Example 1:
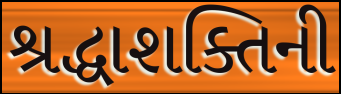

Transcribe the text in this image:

શ્રદ્ધાશક્તિની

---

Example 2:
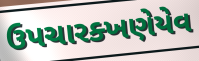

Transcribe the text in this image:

ઉપચારક્ખણેયેવ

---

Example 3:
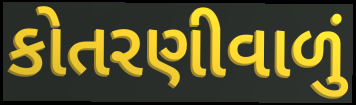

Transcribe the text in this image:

કોતરણીવાળું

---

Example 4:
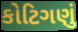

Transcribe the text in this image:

કોટિગણું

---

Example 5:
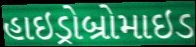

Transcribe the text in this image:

હાઇડ્રોબ્રોમાઇડ